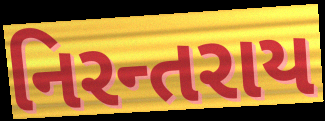
નિરન્તરાય